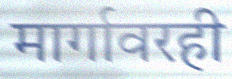
मार्गावरही